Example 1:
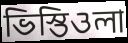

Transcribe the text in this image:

ভিস্তিওলা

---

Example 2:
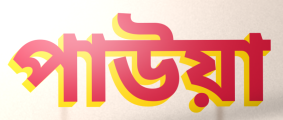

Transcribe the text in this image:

পাউয়া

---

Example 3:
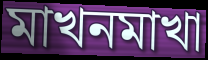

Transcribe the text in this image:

মাখনমাখা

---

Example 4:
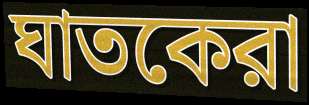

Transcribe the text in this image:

ঘাতকেরা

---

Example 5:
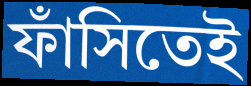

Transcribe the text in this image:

ফাঁসিতেই